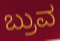
ಬ್ರುವ